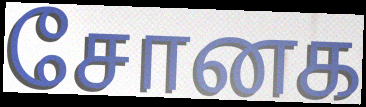
சோனக